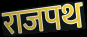
राजपथ